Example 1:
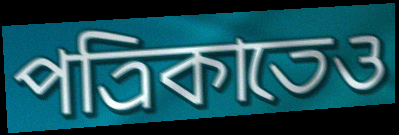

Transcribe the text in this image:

পত্রিকাতেও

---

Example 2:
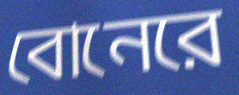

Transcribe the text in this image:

বোনেরে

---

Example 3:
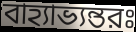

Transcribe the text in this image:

বাহ্যাভ্যন্তরঃ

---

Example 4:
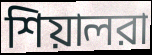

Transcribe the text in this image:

শিয়ালরা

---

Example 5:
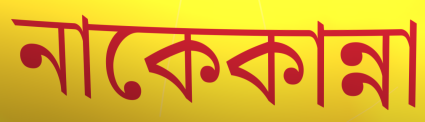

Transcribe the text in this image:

নাকেকান্না